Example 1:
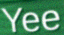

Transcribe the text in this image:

Yee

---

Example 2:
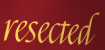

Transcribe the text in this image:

resected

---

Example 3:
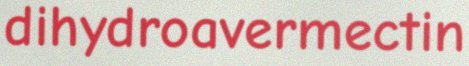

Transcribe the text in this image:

dihydroavermectin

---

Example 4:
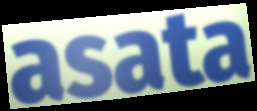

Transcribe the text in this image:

asata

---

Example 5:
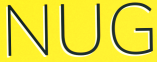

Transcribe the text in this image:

NUG